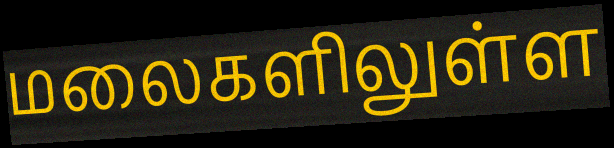
மலைகளிலுள்ள